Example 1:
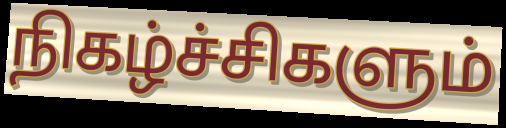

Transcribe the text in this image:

நிகழ்ச்சிகளும்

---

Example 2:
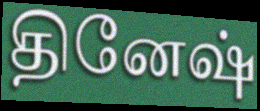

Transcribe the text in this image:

தினேஷ்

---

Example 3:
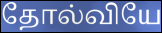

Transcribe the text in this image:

தோல்வியே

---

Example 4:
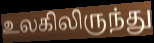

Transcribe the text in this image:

உலகிலிருந்து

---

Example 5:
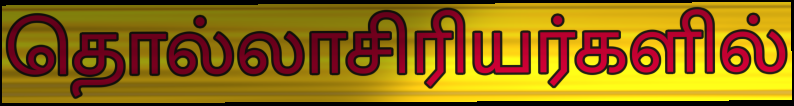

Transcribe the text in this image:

தொல்லாசிரியர்களில்